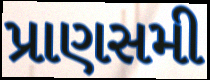
પ્રાણસમી